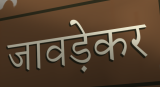
जावड़ेकर